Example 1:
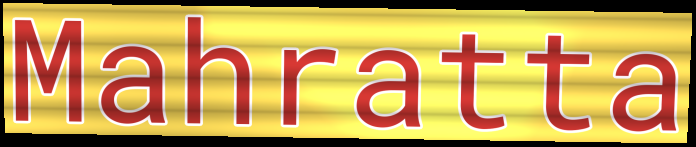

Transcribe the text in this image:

Mahratta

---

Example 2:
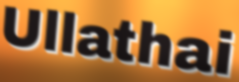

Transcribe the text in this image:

Ullathai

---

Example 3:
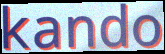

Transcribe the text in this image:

kando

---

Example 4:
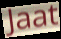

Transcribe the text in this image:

Jaat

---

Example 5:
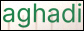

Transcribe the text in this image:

aghadi